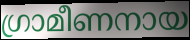
ഗ്രാമീണനായ